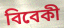
বিবেকী